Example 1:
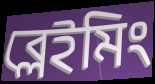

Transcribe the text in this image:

ব্লেইমিং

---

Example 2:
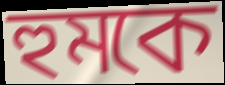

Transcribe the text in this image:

হুমকে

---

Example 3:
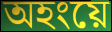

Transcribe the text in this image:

অহংয়ে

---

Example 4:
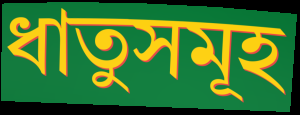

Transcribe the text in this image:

ধাতুসমূহ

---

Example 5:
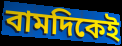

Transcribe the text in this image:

বামদিকেই